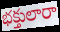
భక్తులారా